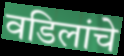
वडिलांचे